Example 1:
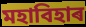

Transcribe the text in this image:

মহাবিহাৰ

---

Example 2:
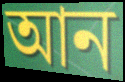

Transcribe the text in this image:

আন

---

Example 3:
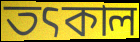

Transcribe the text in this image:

তৎকাল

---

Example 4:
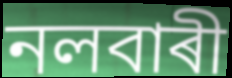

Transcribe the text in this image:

নলবাৰী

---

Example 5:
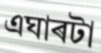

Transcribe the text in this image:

এঘাৰটা